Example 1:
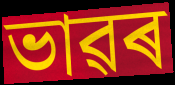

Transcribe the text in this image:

ভাৱৰ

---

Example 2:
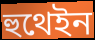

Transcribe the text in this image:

হুথেইন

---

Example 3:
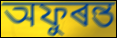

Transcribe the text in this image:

অফুৰন্ত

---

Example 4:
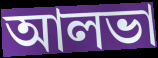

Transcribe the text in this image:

আলভা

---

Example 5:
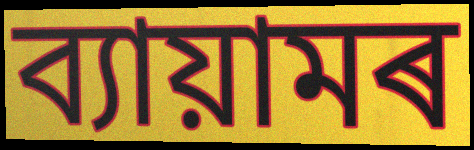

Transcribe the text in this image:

ব্যায়ামৰ